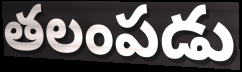
తలంపడు